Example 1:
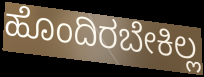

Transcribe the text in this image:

ಹೊಂದಿರಬೇಕಿಲ್ಲ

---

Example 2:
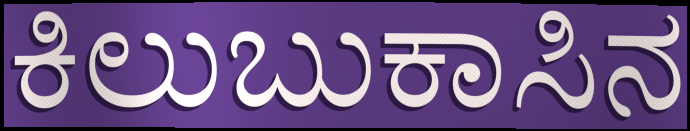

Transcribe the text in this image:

ಕಿಲುಬುಕಾಸಿನ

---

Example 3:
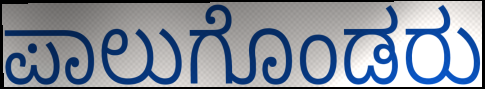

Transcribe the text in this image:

ಪಾಲುಗೊಂಡರು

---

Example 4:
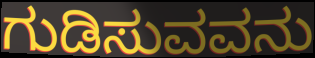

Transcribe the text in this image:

ಗುಡಿಸುವವನು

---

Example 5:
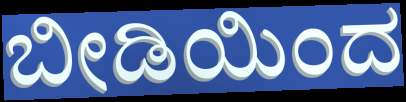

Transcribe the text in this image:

ಬೀಡಿಯಿಂದ